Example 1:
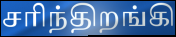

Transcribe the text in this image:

சரிந்திறங்கி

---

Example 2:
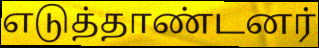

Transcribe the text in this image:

எடுத்தாண்டனர்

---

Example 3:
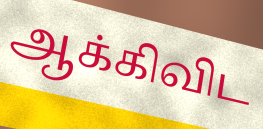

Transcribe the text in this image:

ஆக்கிவிட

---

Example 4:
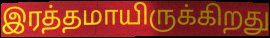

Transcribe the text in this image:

இரத்தமாயிருக்கிறது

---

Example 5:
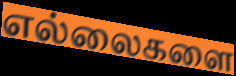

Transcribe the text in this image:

எல்லைகளை